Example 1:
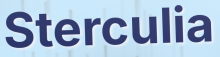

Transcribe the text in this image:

Sterculia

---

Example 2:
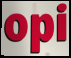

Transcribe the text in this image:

opi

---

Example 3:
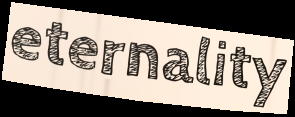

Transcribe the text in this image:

eternality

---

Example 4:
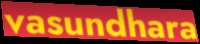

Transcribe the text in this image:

vasundhara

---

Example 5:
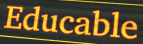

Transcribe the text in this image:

Educable